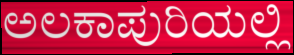
ಅಲಕಾಪುರಿಯಲ್ಲಿ